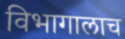
विभागालाच